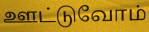
ஊட்டுவோம்